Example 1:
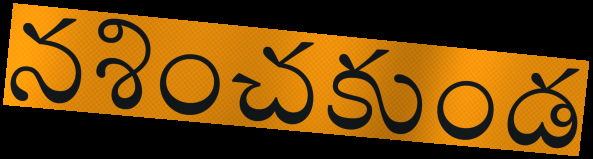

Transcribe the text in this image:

నశించకుండ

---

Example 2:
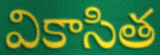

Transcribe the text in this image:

వికాసిత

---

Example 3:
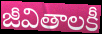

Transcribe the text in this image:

జీవితాలకీ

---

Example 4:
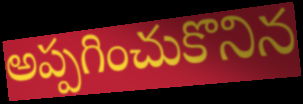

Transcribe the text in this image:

అప్పగించుకొనిన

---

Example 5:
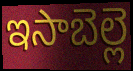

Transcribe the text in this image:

ఇసాబెల్లె